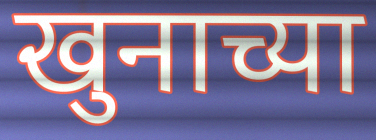
खुनाच्या